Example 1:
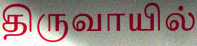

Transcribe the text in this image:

திருவாயில்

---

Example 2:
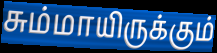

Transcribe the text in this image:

சும்மாயிருக்கும்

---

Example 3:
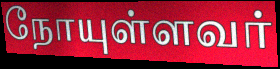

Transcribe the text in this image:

நோயுள்ளவர்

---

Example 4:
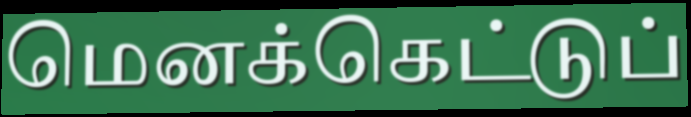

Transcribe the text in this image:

மெனக்கெட்டுப்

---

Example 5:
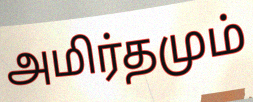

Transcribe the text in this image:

அமிர்தமும்